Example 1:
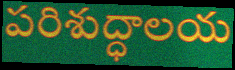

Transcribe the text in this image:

పరిశుద్ధాలయ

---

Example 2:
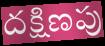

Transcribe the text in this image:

దక్షిణపు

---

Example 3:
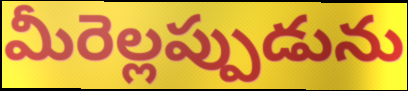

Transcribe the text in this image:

మీరెల్లప్పుడును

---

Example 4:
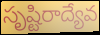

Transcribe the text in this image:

సృష్టిరాద్యేవ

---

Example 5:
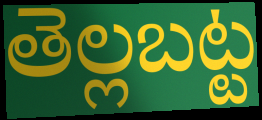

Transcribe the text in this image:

తెల్లబట్ట